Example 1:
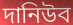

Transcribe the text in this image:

দানিউব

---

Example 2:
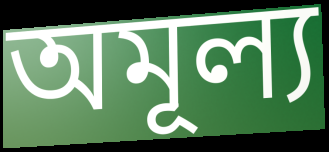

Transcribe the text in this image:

অমূল্য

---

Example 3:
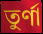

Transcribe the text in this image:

তুর্ণা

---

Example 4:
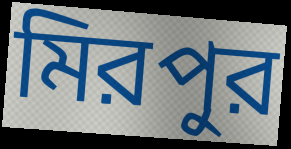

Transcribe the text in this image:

মিরপুর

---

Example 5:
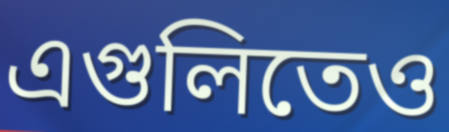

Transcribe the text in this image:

এগুলিতেও